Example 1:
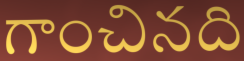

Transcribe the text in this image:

గాంచినది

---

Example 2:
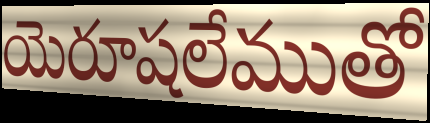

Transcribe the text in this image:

యెరూషలేముతో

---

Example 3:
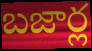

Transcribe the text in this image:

బజార్ల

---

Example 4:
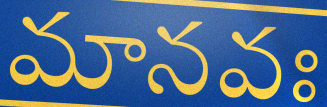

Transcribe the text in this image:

మానవః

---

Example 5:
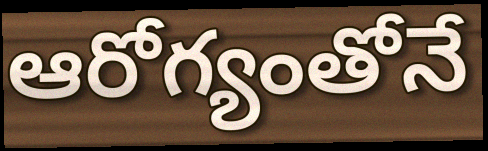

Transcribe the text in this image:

ఆరోగ్యంతోనే